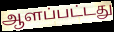
ஆளப்பட்டது